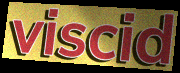
viscid